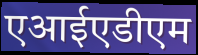
एआईएडीएम